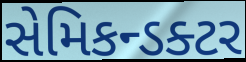
સેમિકન્ડક્ટર